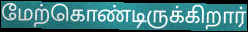
மேற்கொண்டிருக்கிறார்